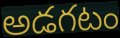
అడగటం